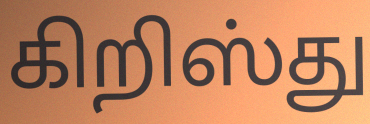
கிறிஸ்து